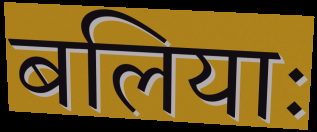
बलियाः